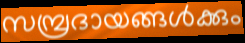
സമ്പ്രദായങ്ങൾക്കും